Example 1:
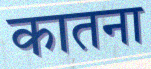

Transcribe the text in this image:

कातना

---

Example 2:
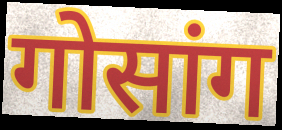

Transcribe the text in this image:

गोसांग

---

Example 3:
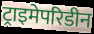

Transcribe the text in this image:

ट्राइमेपरिडीन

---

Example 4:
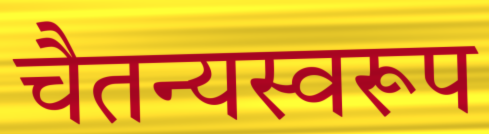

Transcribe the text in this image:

चैतन्यस्वरूप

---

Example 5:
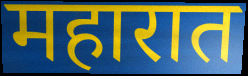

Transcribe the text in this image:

महारात